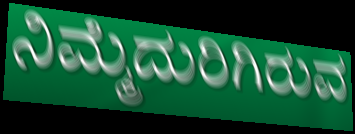
ನಿಮ್ಮೆದುರಿಗಿರುವ